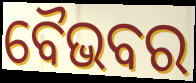
ବୈଭବର